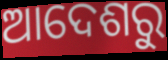
ଆଦେଶରୁ